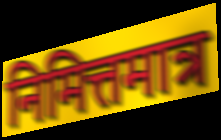
निमित्तमात्र